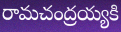
రామచంద్రయ్యకి